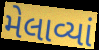
મેલાવ્યાં